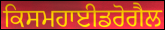
ਕਿਸਮਹਾਈਡਰੋਗੈਲ